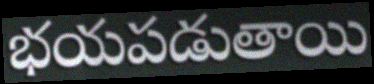
భయపడుతాయి